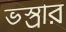
ভস্ত্রার